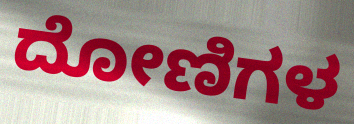
ದೋಣಿಗಳ